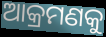
ଆକ୍ରମଣକୁ